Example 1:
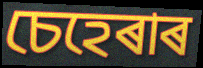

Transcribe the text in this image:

চেহেৰাৰ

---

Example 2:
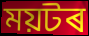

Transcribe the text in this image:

ময়টৰ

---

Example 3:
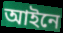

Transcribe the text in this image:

আইনে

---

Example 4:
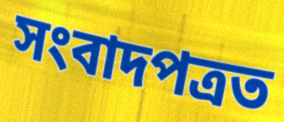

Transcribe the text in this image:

সংবাদপত্ৰত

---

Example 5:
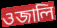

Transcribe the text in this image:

ওজালি